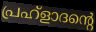
പ്രഹ്ളാദന്റെ